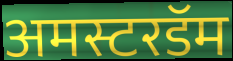
अमस्टरडॅम